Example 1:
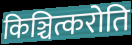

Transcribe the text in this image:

किञ्चित्करोति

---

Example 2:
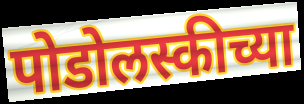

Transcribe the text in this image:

पोडोलस्कीच्या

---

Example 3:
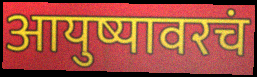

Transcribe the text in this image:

आयुष्यावरचं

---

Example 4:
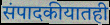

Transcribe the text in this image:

संपादकीयातही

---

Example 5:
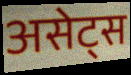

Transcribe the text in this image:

असेट्स